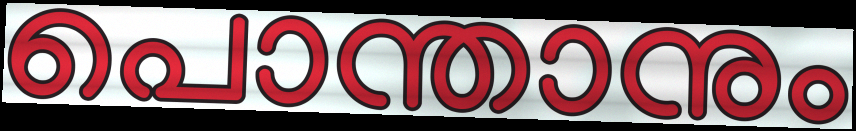
പൊന്താനും